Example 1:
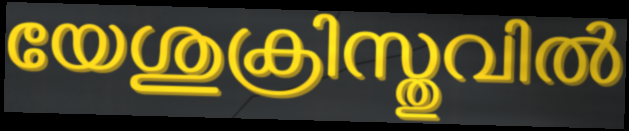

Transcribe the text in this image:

യേശുക്രിസ്തുവിൽ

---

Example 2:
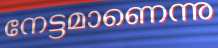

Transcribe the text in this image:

നേട്ടമാണെന്നു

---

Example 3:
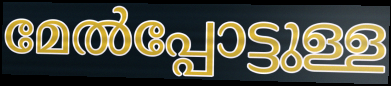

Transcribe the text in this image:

മേൽപ്പോട്ടുള്ള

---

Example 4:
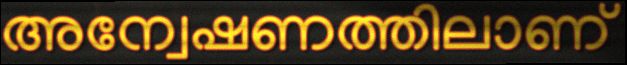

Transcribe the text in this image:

അന്വേഷണത്തിലാണ്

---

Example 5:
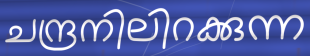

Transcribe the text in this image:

ചന്ദ്രനിലിറക്കുന്ന